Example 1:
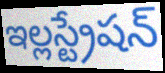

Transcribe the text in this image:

ఇల్లస్ట్రేషన్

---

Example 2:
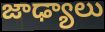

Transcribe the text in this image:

జాఢ్యాలు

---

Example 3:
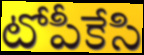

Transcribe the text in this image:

టోపీకేసి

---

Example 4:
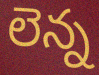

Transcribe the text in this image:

లెన్న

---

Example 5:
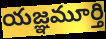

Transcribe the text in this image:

యజ్ఞమూర్తి